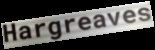
Hargreaves